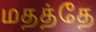
மதத்தே